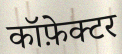
कॉफ़ेक्टर